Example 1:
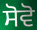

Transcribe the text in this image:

ਸੋਵੋ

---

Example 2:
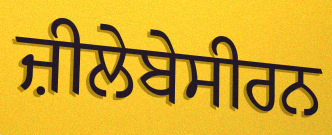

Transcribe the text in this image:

ਜ਼ੀਲੇਬੇਸੀਰਨ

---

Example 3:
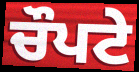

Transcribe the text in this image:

ਚੌਪਟੇ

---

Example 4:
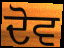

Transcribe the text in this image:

ਦੋਵ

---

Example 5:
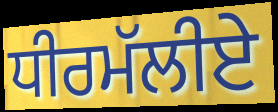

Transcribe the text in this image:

ਧੀਰਮੱਲੀਏ